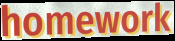
homework